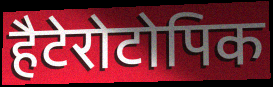
हैटेरोटोपिक